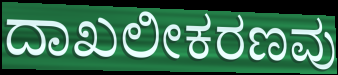
ದಾಖಲೀಕರಣವು